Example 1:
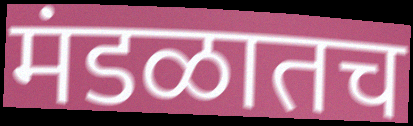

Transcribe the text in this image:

मंडळातच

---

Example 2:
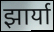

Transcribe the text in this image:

झार्या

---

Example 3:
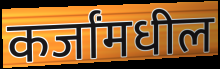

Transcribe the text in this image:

कर्जांमधील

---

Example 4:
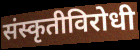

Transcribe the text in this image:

संस्कृतीविरोधी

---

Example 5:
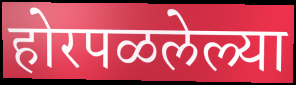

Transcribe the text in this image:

होरपळलेल्या